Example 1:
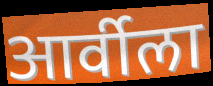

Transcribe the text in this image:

आर्वीला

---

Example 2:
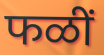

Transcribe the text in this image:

फळीं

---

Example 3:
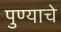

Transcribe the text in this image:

पुण्याचे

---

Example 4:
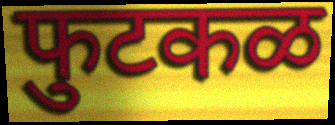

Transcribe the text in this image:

फुटकळ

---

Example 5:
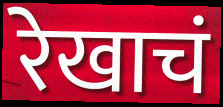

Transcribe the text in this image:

रेखाचं